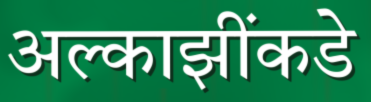
अल्काझींकडे